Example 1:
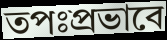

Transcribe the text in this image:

তপঃপ্রভাবে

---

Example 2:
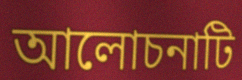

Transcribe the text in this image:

আলোচনাটি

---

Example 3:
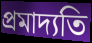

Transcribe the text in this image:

প্রমাদ্যতি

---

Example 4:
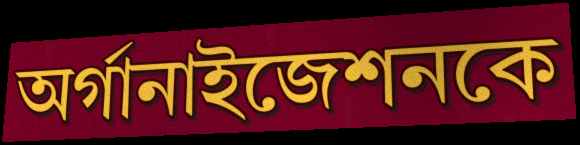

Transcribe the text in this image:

অর্গানাইজেশনকে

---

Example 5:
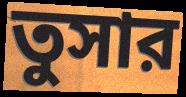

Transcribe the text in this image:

তুসার